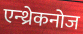
एन्थ्रेकनोज